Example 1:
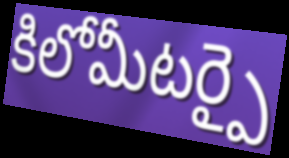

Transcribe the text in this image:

కిలోమీటర్పై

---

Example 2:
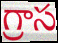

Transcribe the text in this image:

గ్రాస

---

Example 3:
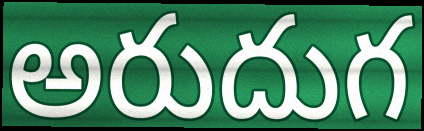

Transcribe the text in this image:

అరుదుగ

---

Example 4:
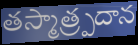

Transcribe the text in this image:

తస్మాత్ర్పదాన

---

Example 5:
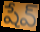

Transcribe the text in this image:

షేవ్